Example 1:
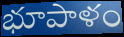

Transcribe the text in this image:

భూపాళం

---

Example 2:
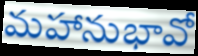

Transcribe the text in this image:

మహానుభావో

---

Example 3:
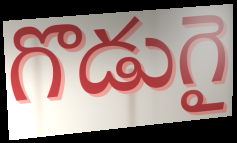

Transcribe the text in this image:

గొడుగై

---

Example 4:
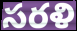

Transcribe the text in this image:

సరళి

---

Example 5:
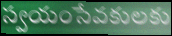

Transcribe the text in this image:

స్వయంసేవకులకు